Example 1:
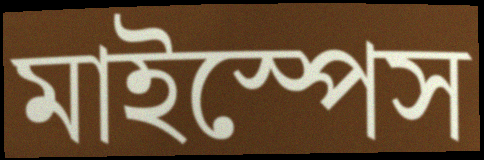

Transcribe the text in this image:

মাইস্পেস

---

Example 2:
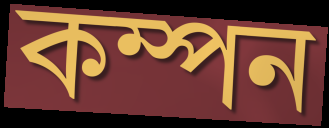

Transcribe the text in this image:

কম্পন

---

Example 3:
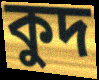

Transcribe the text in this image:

কুদ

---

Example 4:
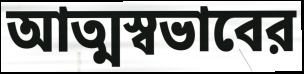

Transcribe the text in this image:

আত্মস্বভাবের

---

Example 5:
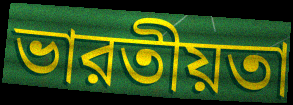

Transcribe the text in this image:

ভারতীয়তা